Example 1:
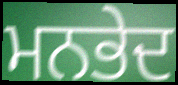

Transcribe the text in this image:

ਮਨਭੇਦ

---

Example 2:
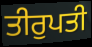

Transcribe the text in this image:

ਤੀਰੁਪਤੀ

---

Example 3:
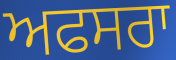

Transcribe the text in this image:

ਅਫਸਰਾ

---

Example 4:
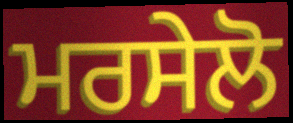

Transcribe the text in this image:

ਮਰਸੇਲੋ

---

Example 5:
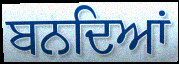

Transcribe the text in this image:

ਬਨਦਿਆਂ